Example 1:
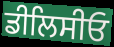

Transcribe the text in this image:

ਡੀਲਿਸੀਓ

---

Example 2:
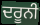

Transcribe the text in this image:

ਦਰੂਨੀ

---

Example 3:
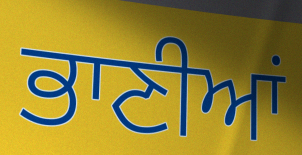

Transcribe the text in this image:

ਭਾਣੀਆਂ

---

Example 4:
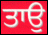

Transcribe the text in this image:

ਤਾਉ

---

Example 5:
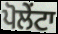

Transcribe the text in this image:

ਪੋਲੇਂਟਾ